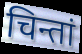
चिन्तां